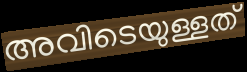
അവിടെയുള്ളത്